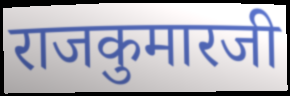
राजकुमारजी